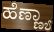
ಹೆಣ್ಣ್ಯಾ